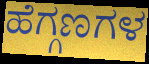
ಹೆಗ್ಗಣಗಳ